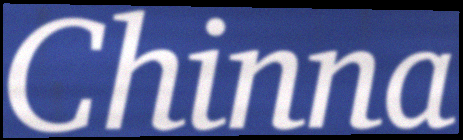
Chinna